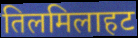
तिलमिलाहट